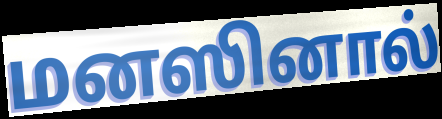
மனஸினால்